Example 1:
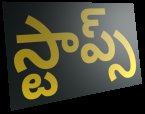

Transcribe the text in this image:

స్టాప్స్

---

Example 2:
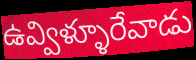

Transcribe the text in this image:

ఉవ్విళ్ళూరేవాడు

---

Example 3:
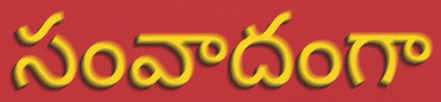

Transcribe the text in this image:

సంవాదంగా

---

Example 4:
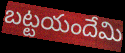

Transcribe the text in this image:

బట్టయందేమి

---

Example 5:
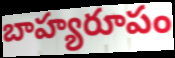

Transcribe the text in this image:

బాహ్యరూపం